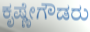
ಕೃಷ್ಣೇಗೌಡರು